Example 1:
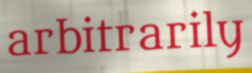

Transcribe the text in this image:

arbitrarily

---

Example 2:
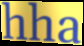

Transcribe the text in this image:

hha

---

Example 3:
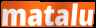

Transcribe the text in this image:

matalu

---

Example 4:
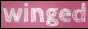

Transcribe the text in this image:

winged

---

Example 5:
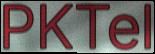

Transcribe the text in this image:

PKTel